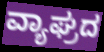
ವ್ಯಾಘ್ರದ